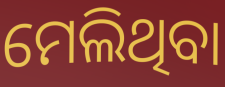
ମେଲିଥିବା